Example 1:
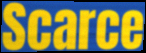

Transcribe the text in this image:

Scarce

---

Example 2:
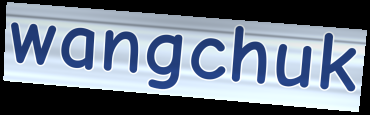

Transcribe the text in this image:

wangchuk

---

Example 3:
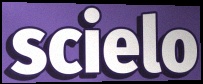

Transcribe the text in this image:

scielo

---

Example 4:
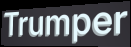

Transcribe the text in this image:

Trumper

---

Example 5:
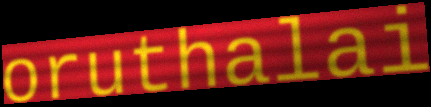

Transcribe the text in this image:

oruthalai